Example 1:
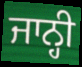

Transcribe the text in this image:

ਜਾਨ੍ਹੀ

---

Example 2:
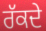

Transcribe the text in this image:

ਰੱਕਦੇ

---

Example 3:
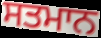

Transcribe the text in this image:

ਸਤਮਾਨ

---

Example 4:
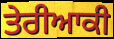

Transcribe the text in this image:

ਤੇਰੀਆਕੀ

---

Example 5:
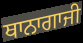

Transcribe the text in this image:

ਥਾਨਾਗਾਜੀ